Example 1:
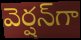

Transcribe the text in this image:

వెర్షన్‌గా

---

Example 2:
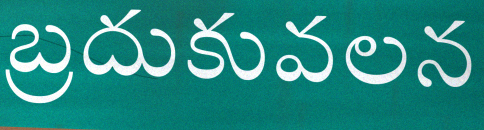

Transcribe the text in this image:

బ్రదుకువలన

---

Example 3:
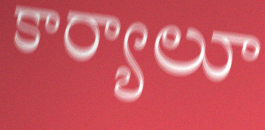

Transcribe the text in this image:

కార్యాలూ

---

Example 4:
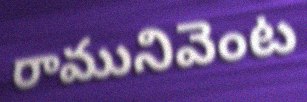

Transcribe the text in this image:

రామునివెంట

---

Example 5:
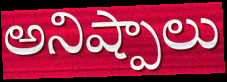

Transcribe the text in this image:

అనిష్పాలు